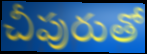
చీపురుతో